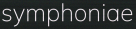
symphoniae